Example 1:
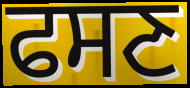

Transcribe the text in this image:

ਫਸਣ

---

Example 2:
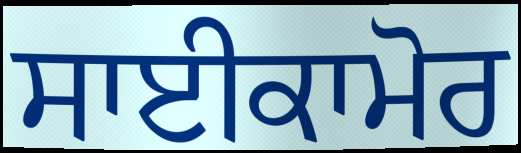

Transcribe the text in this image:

ਸਾਈਕਾਮੋਰ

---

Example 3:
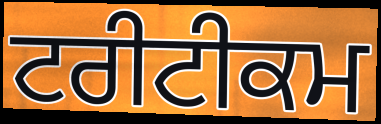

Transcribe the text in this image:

ਟਰੀਟੀਕਮ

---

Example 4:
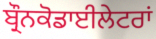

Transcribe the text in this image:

ਬ੍ਰੌਨਕੋਡਾਈਲੇਟਰਾਂ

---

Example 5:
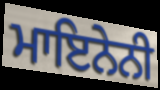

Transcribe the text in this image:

ਮਾਇਨੇਨੀ